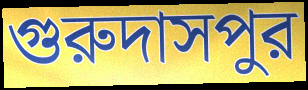
গুরুদাসপুর